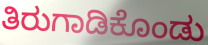
ತಿರುಗಾಡಿಕೊಂಡು